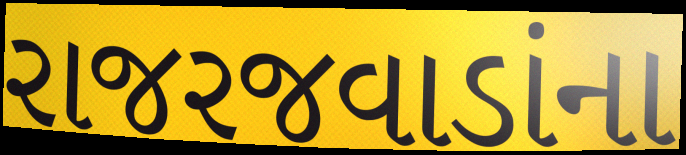
રાજરજવાડાંના